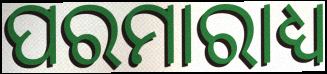
ପରମାରାଧ୍ୟ